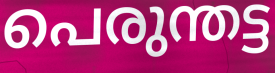
പെരുന്തട്ട